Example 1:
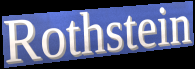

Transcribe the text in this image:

Rothstein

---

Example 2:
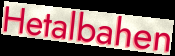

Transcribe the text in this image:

Hetalbahen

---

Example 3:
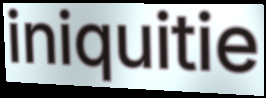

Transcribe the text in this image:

iniquitie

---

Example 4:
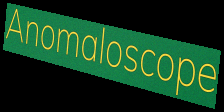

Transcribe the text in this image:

Anomaloscope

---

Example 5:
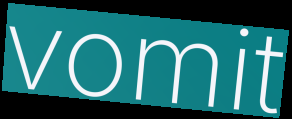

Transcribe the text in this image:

vomit